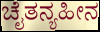
ಚೈತನ್ಯಹೀನ